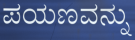
ಪಯಣವನ್ನು